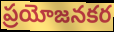
ప్రయోజనకర